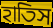
হাতিস